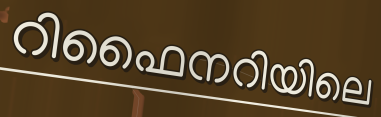
റിഫൈനറിയിലെ